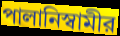
পালানিস্বামীর